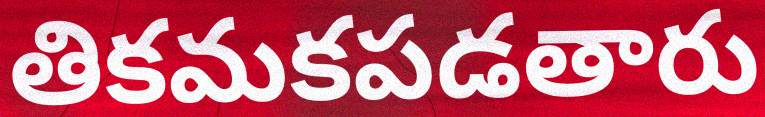
తికమకపడతారు